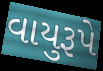
વાયુરૂપે